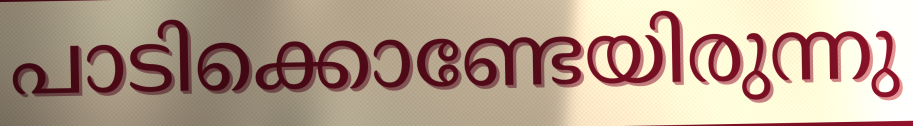
പാടിക്കൊണ്ടേയിരുന്നു